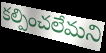
కల్పించలేమని